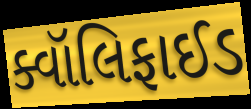
ક્વૉલિફાઈડ